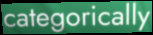
categorically